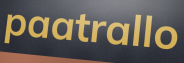
paatrallo